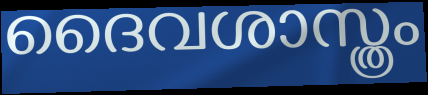
ദൈവശാസ്ത്രം